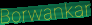
Borwankar